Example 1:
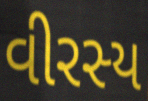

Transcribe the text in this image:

વીરસ્ય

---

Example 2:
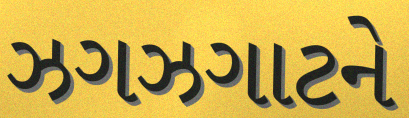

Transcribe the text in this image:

ઝગઝગાટને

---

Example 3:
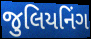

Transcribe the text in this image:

જુલિયનિંગ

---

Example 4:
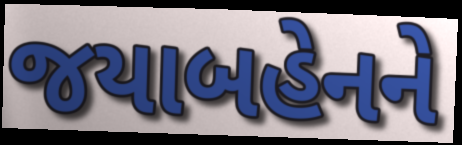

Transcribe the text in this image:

જયાબહેનને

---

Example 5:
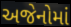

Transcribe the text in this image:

અજેનોમાં